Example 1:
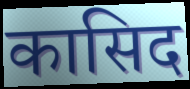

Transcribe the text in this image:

कासिद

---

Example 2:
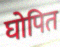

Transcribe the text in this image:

घोपित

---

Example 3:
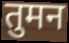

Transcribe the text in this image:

तुमन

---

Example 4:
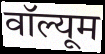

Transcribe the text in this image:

वॉल्यूम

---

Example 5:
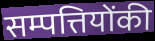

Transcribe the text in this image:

सम्पत्तियोंकी